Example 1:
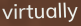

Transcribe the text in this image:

virtually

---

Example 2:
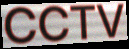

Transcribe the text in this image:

CCTV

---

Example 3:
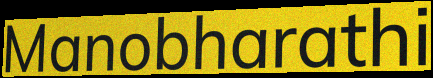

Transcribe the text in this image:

Manobharathi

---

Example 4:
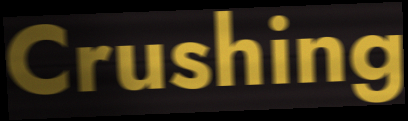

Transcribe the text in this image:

Crushing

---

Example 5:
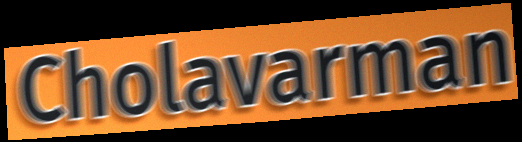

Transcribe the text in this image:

Cholavarman